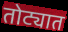
तोट्यात